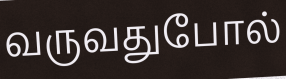
வருவதுபோல்